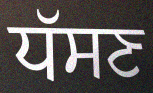
ਧੱਸਣ